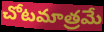
చోటమాత్రమే